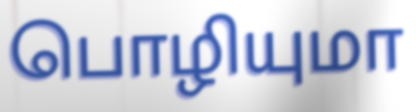
பொழியுமா